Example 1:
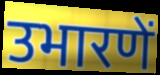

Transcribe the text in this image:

उभारणें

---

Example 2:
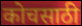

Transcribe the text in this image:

कोचसाठी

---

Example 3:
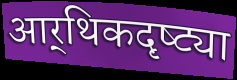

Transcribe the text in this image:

आर्थिकदृष्ट्या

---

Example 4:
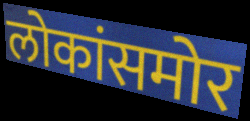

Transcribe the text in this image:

लोकांसमोर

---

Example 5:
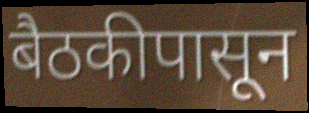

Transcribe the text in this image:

बैठकीपासून